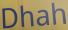
Dhah